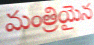
మంత్రియైన